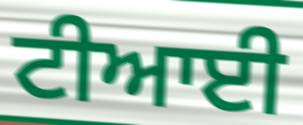
ਟੀਆਈ